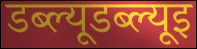
डब्ल्यूडब्ल्यूइ